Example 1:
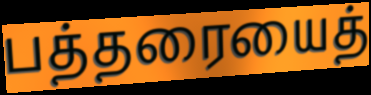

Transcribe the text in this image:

பத்தரையைத்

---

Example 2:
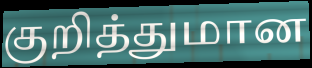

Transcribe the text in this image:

குறித்துமான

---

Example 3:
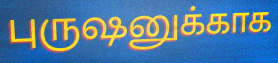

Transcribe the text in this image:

புருஷனுக்காக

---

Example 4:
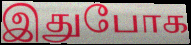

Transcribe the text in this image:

இதுபோக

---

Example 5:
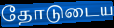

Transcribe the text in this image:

தோடுடைய